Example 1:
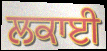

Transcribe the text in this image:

ਲਕਾਈ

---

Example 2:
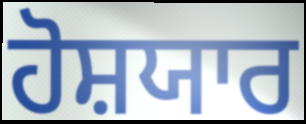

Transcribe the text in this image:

ਹੋਸ਼ਯਾਰ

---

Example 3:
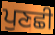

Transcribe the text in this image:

ਪੁਣਛੀ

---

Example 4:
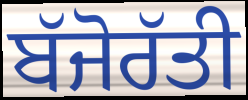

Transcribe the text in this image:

ਬੱਜੋਰੱਤੀ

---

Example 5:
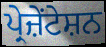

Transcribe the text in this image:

ਪ੍ਰੇਜ਼ੇਂਟੇਸ਼ਨ